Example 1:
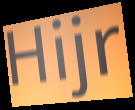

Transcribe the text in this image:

Hijr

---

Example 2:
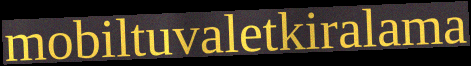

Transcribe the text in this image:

mobiltuvaletkiralama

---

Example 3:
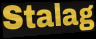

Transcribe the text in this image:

Stalag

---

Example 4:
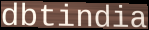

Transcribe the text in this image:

dbtindia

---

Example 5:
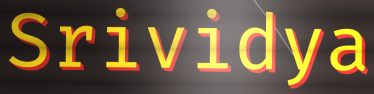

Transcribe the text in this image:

Srividya